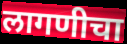
लागणीचा